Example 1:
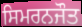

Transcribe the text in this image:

ਸਿਮਰਨਜੌਤ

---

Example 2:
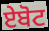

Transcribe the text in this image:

ਏਬੋਟ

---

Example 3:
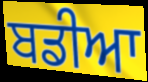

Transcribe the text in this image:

ਬਡੀਆ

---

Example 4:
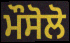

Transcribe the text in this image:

ਮੌਸੋਲੋ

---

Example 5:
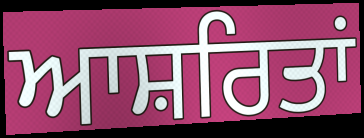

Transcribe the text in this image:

ਆਸ਼ਰਿਤਾਂ